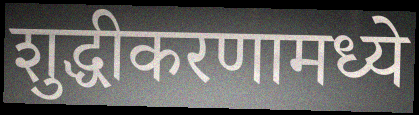
शुद्धीकरणामध्ये